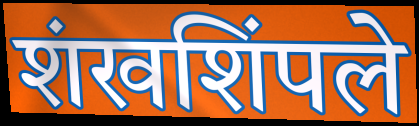
शंखशिंपले